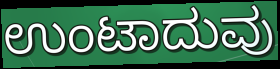
ಉಂಟಾದುವು